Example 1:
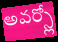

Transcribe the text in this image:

అవర్స్లో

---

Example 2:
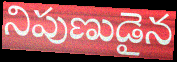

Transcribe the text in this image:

నిపుణుడైన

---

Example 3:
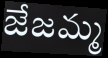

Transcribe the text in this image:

జేజమ్మ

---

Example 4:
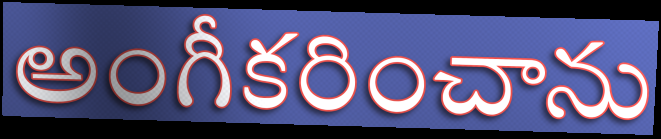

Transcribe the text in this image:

అంగీకరించాను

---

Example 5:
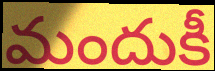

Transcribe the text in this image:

మందుకీ